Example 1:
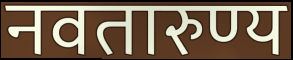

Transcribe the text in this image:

नवतारुण्य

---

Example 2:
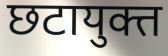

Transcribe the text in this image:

छटायुक्त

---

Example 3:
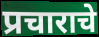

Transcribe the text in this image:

प्रचाराचे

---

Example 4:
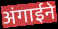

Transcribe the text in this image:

अंगाईने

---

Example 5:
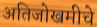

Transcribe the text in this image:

अतिजोखमीचे